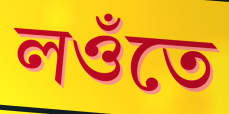
লওঁতে